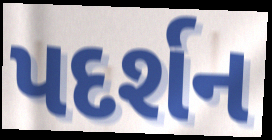
પદર્શન